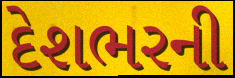
દેશભરની